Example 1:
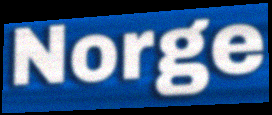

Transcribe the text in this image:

Norge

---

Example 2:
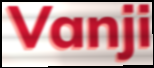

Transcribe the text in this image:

Vanji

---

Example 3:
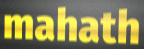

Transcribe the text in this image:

mahath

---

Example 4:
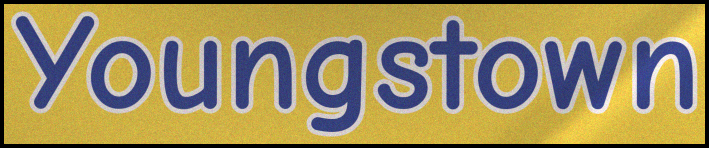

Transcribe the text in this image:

Youngstown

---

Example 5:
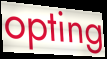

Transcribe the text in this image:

opting